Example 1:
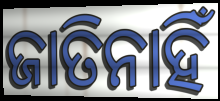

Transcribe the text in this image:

ଜାତିନାହିଁ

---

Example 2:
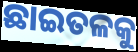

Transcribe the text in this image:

ଛାଇତଳକୁ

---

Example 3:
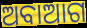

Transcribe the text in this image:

ଅବାଆଗ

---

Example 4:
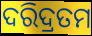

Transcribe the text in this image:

ଦରିଦ୍ରତମ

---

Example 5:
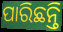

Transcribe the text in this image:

ପାରିଛନ୍ତି